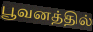
பூவனத்தில்